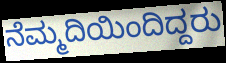
ನೆಮ್ಮದಿಯಿಂದಿದ್ದರು